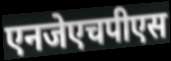
एनजेएचपीएस